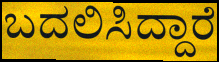
ಬದಲಿಸಿದ್ದಾರೆ